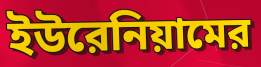
ইউরেনিয়ামের